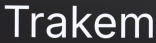
Trakem